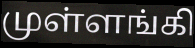
முள்ளங்கி